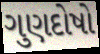
ગુણદોષો